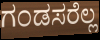
ಗಂಡಸರೆಲ್ಲ